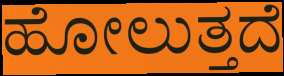
ಹೋಲುತ್ತದೆ